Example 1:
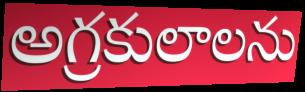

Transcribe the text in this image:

అగ్రకులాలను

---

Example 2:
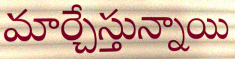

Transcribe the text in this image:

మార్చేస్తున్నాయి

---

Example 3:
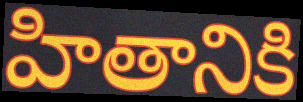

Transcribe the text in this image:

హితానికి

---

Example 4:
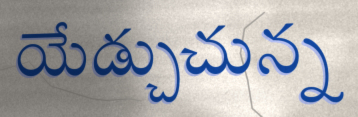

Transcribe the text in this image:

యేడ్చుచున్న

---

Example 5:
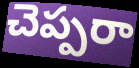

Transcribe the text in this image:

చెప్పరా